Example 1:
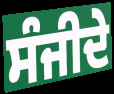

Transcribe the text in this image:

ਸੰਜੀਦੇ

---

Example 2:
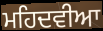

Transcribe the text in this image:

ਮਹਿਦਵੀਆ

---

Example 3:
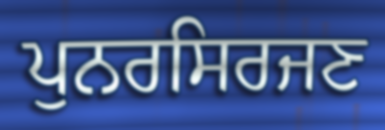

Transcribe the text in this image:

ਪੁਨਰਸਿਰਜਣ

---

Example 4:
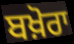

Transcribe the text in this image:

ਬਖ਼ੋਰਾ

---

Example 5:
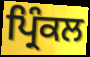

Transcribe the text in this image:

ਪ੍ਰਿੰਕਲ